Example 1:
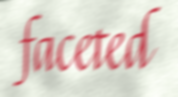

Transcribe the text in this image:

faceted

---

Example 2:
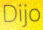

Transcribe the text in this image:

Dijo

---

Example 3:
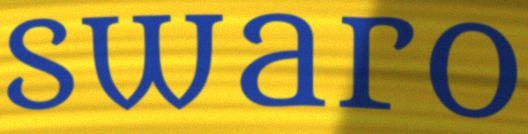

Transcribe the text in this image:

swaro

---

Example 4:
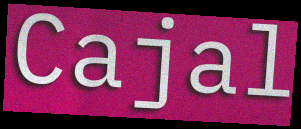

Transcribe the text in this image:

Cajal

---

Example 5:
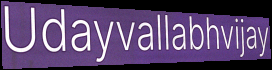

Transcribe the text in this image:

Udayvallabhvijay